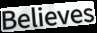
Believes